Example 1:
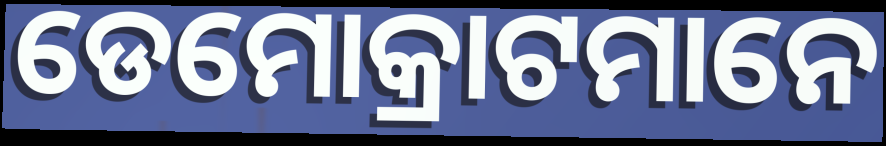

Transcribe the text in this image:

ଡେମୋକ୍ରାଟମାନେ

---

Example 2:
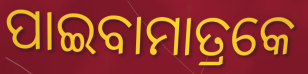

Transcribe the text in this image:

ପାଇବାମାତ୍ରକେ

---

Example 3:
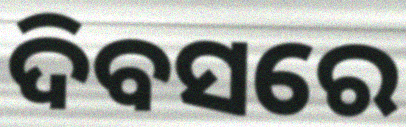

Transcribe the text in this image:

ଦିବସରେ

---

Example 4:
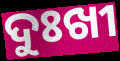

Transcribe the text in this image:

ଦୁଃଖୀ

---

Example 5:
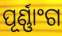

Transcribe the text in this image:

ପୂର୍ଣ୍ଣାଂଗ